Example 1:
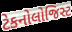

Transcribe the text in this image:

ટેકનોલોજિસ્ટ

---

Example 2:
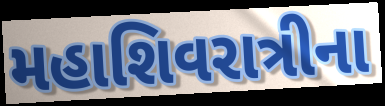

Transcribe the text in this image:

મહાશિવરાત્રીના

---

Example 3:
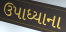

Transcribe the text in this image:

ઉપાધ્યાના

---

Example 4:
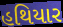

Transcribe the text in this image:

હથિયાર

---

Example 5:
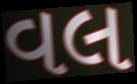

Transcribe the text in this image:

વલ